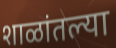
शाळांतल्या